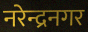
नरेन्द्रनगर